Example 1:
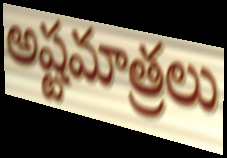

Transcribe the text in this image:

అష్టమాత్రలు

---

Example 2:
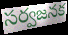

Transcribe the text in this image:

సర్వజనక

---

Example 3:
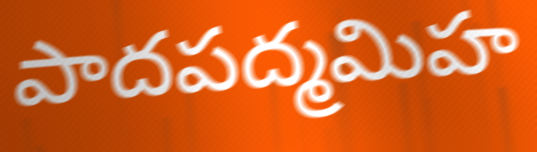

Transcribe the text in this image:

పాదపద్మమిహ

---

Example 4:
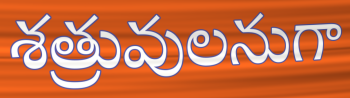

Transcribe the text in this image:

శత్రువులనుగా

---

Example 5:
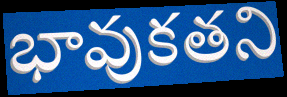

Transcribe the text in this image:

భావుకతని